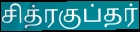
சித்ரகுப்தர்